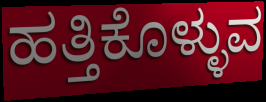
ಹತ್ತಿಕೊಳ್ಳುವ